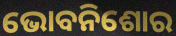
ଭୋବନିଶୋର